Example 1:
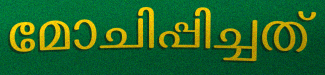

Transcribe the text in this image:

മോചിപ്പിച്ചത്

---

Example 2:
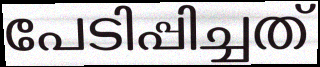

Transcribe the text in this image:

പേടിപ്പിച്ചത്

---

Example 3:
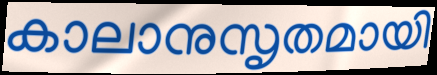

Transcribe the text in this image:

കാലാനുസൃതമായി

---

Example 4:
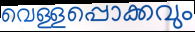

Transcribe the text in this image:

വെള്ളപ്പൊക്കവും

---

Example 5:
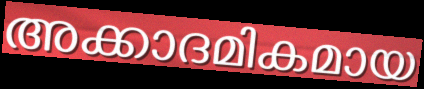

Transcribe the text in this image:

അക്കാദമികമായ